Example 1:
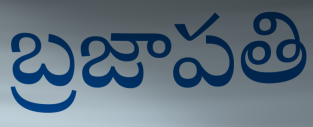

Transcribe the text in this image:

బ్రజాపతి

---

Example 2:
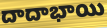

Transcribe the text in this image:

దాదాభాయి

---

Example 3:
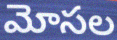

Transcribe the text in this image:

మోసల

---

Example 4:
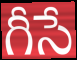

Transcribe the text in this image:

గీసే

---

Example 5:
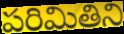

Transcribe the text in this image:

పరిమితిని